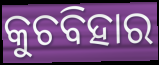
କୁଚବିହାର